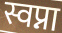
स्वप्ना